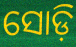
ସୋଡ଼ି